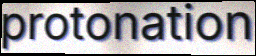
protonation